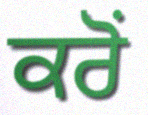
ਕਰੋਂ